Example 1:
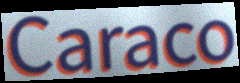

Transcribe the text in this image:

Caraco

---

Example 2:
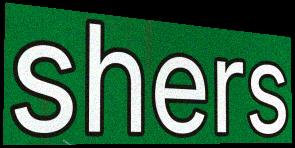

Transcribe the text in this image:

shers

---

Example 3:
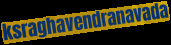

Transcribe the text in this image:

ksraghavendranavada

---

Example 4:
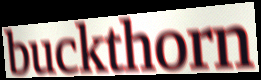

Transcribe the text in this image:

buckthorn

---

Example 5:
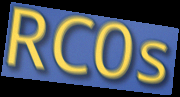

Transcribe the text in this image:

RCOs